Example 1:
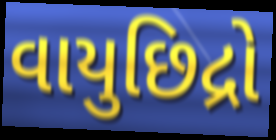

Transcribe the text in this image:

વાયુછિદ્રો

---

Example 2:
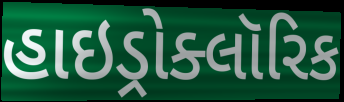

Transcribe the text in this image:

હાઇડ્રોક્લૉરિક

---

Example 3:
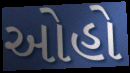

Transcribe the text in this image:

ઓહો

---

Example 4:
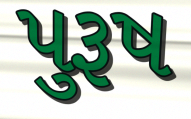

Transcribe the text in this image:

પુરૂષ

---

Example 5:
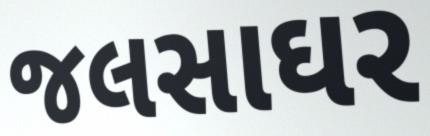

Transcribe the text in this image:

જલસાઘર